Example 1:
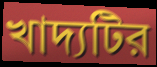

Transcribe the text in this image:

খাদ্যটির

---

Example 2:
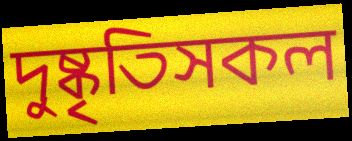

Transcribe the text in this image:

দুষ্কৃতিসকল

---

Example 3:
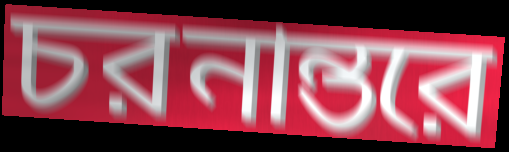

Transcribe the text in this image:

চরনান্তরে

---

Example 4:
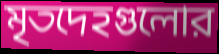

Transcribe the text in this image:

মৃতদেহগুলোর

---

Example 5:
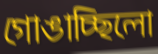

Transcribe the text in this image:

গোঙাচ্ছিলো